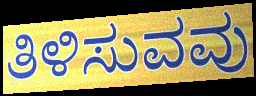
ತಿಳಿಸುವವು